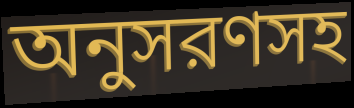
অনুসরণসহ